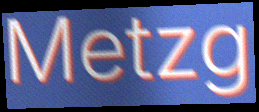
Metzg